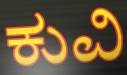
ಕುವಿ